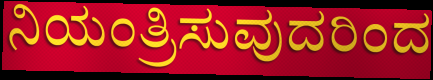
ನಿಯಂತ್ರಿಸುವುದರಿಂದ